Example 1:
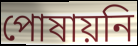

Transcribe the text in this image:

পোষায়নি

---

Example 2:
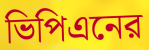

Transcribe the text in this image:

ভিপিএনের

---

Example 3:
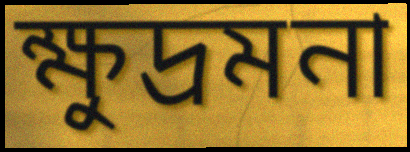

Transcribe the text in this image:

ক্ষুদ্রমনা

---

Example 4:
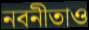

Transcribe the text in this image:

নবনীতাও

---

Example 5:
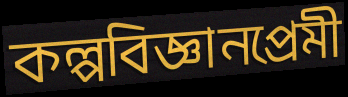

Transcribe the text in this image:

কল্পবিজ্ঞানপ্রেমী